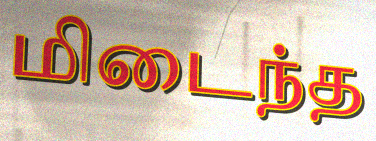
மிடைந்த